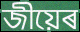
জীয়েৰ